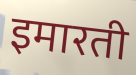
इमारती